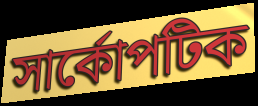
সার্কোপটিক